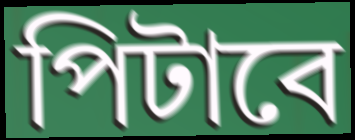
পিটাবে